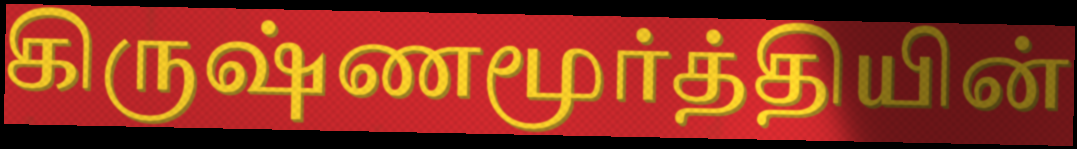
கிருஷ்ணமூர்த்தியின்